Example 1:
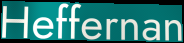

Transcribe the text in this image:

Heffernan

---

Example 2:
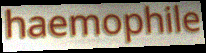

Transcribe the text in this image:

haemophile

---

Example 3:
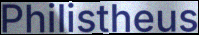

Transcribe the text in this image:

Philistheus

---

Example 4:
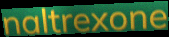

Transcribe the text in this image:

naltrexone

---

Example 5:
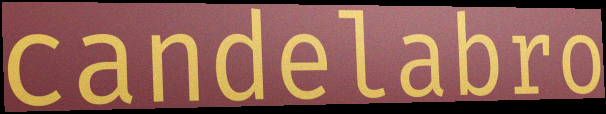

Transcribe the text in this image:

candelabro